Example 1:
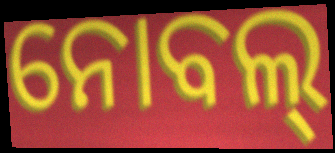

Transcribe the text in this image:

ନୋବଲ୍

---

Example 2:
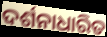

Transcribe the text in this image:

ଦର୍ଶନାଧାରିତ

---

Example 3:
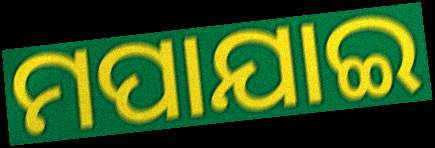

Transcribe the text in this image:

ମପାଯାଇ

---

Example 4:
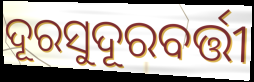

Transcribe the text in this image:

ଦୂରସୁଦୂରବର୍ତ୍ତୀ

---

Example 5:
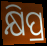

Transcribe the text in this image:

କ୍ଷିପ୍ର